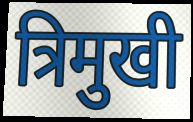
त्रिमुखी